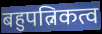
बहुपत्निकत्व